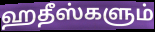
ஹதீஸ்களும்